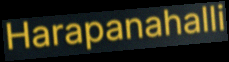
Harapanahalli